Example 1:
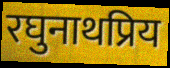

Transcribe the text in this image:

रघुनाथप्रिय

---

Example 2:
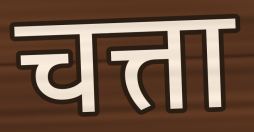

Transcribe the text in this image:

चत्ता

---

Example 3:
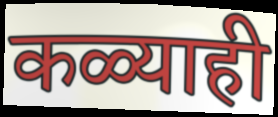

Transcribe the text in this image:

कळ्याही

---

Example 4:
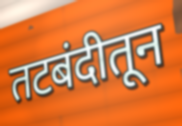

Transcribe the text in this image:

तटबंदीतून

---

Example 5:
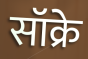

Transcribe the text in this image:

सॉक्रे